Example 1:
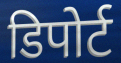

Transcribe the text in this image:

डिपोर्ट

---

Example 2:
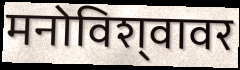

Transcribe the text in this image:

मनोविश्वावर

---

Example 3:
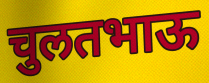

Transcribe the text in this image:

चुलतभाऊ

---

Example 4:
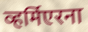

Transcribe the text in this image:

व्हर्मिएरना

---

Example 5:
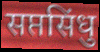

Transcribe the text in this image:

सप्तसिंधु